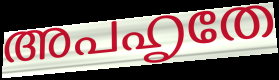
അപഹൃതേ